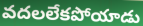
వదలలేకపోయాడు